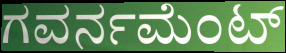
ಗವರ್ನಮೆಂಟ್